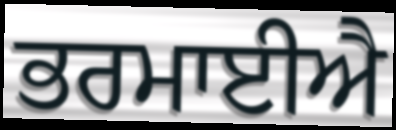
ਭਰਮਾਈਐ